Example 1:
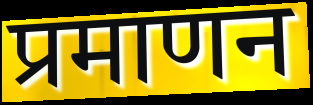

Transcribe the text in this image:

प्रमाणन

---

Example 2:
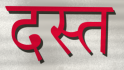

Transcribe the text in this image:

दस्त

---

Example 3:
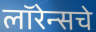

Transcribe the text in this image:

लॉरेन्सचे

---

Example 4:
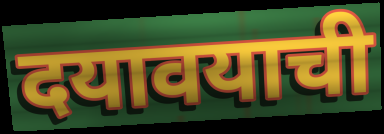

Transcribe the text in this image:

दयावयाची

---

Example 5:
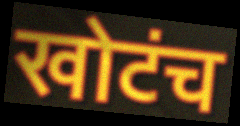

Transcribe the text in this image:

खोटंच